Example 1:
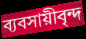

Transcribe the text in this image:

ব্যবসায়ীবৃন্দ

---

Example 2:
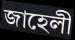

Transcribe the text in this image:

জাহেলী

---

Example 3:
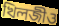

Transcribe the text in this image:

খিলজীও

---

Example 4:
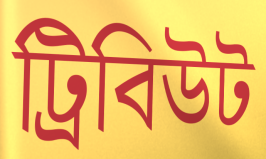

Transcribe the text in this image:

ট্রিবিউট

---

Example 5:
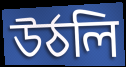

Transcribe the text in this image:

উঠলি